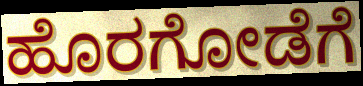
ಹೊರಗೋಡೆಗೆ